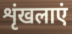
शृंखलाएं